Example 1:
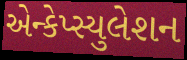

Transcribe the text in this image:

એન્કેપ્સ્યુલેશન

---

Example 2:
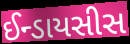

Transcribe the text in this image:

ઈન્ડાયસીસ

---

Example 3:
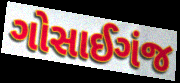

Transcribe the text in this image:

ગોસાઈગંજ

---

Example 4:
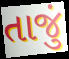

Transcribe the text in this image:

તાજું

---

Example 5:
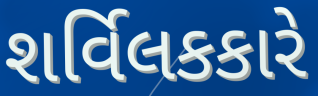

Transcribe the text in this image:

શર્વિલકકારે